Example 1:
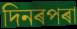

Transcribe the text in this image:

দিনৰপৰা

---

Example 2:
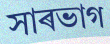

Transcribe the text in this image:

সাৰভাগ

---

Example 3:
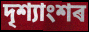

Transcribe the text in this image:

দৃশ্যাংশৰ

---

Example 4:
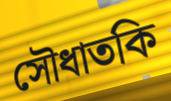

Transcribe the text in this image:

সৌধাতকি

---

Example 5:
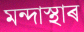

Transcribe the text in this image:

মন্দাস্থাৰ